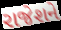
રાજેશને